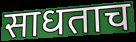
साधताच